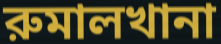
রুমালখানা